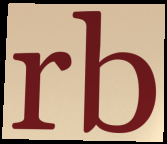
rb